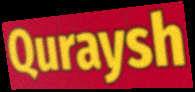
Quraysh